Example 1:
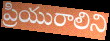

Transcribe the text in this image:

ప్రియురాలిని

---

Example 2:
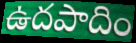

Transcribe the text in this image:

ఉదపాదిం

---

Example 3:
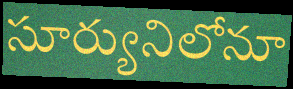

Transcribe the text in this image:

సూర్యునిలోనూ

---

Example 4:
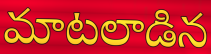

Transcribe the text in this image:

మాటలాడిన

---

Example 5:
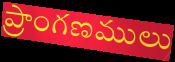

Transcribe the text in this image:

ప్రాంగణములు